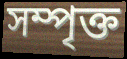
সম্পৃক্ত